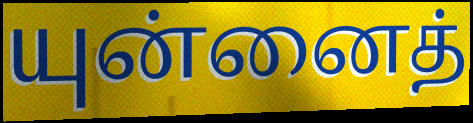
யுன்னைத்